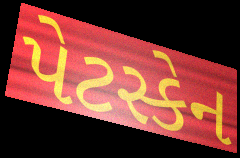
પેટસ્કેન